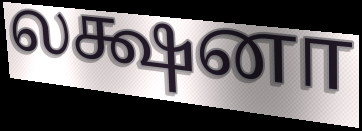
லக்ஷனா